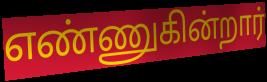
எண்ணுகின்றார்